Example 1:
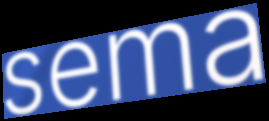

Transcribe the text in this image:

sema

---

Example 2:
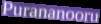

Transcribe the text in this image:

Purananooru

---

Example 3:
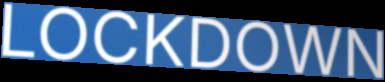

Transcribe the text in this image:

LOCKDOWN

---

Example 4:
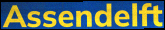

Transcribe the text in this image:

Assendelft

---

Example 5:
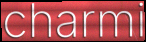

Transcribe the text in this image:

charmi